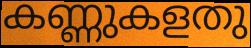
കണ്ണുകളതു